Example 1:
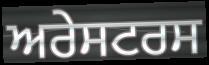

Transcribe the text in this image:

ਅਰੇਸਟਰਸ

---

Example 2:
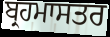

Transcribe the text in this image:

ਬ੍ਰਹਮਾਸਤਰ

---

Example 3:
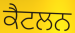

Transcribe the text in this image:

ਕੈਟਲਨ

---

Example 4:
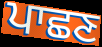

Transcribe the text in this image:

ਪਾਛਣ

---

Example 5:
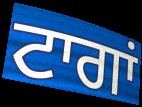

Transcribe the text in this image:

ਟਾਗਾਂ